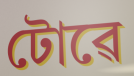
টোৱে